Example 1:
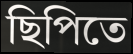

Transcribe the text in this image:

ছিপিতে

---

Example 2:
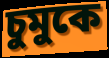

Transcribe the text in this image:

চুমুকে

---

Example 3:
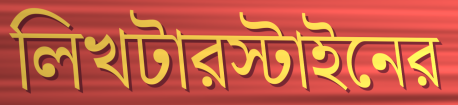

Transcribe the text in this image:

লিখটারস্টাইনের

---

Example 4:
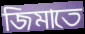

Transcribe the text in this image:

জিমাতে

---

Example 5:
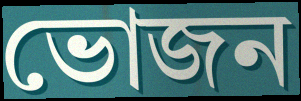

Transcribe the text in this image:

ভোজন